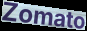
Zomato